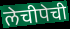
लेचीपेची